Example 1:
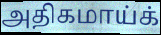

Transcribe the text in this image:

அதிகமாய்க்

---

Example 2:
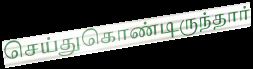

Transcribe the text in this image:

செய்துகொண்டிருந்தார்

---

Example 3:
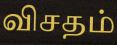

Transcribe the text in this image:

விசதம்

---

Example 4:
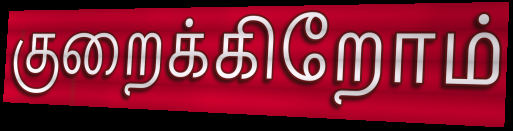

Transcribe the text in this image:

குறைக்கிறோம்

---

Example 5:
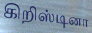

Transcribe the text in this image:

கிறிஸ்டினா